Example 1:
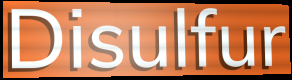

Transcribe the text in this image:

Disulfur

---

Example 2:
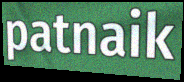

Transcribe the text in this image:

patnaik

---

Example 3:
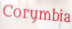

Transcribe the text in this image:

Corymbia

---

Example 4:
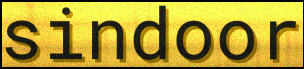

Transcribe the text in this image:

sindoor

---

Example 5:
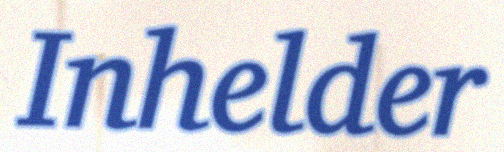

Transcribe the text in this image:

Inhelder